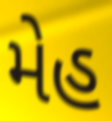
મેહ